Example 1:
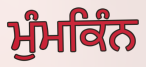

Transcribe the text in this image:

ਮੁੰਮਕਿੰਨ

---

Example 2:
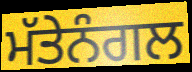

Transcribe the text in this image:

ਮੱਤੇਨੰਗਲ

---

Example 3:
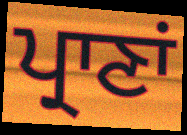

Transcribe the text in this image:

ਪ੍ਰਾਣਾਂ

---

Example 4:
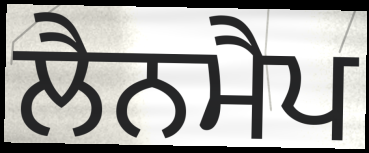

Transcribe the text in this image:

ਲੈਨਮੈਪ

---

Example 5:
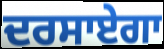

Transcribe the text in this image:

ਦਰਸਾਏਗਾ